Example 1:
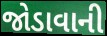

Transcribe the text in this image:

જોડાવાની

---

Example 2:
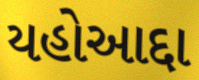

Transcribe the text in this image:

યહોઆદ્દા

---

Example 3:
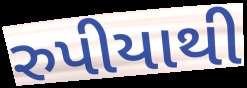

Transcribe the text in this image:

રુપીયાથી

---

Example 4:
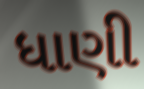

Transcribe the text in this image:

ધાણી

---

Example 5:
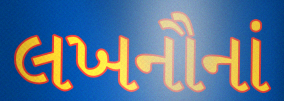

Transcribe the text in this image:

લખનૌનાં